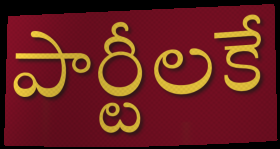
పార్టీలకే